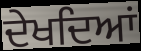
ਦੇਖਦਿਆਂ